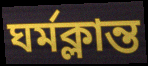
ঘর্মক্লান্ত